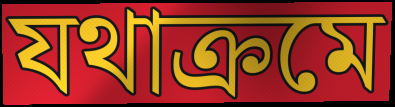
যথাক্ৰমে